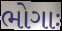
ભોગાઃ